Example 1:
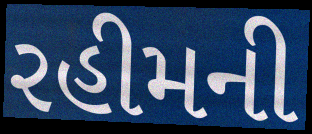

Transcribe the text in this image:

રહીમની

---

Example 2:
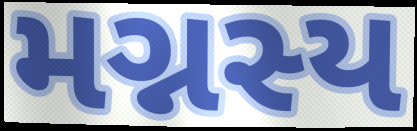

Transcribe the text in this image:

મગ્નસ્ય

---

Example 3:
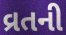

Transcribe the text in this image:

વ્રતની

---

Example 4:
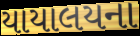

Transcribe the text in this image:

યાયાલયના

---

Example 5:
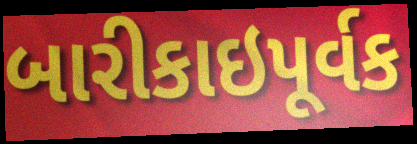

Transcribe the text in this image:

બારીકાઇપૂર્વક